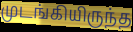
முடங்கியிருந்த